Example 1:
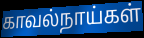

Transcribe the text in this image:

காவல்நாய்கள்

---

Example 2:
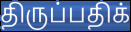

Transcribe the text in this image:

திருப்பதிக்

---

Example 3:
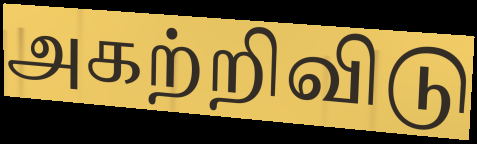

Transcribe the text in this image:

அகற்றிவிடு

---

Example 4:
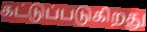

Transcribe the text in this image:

கட்டுப்படுகிறது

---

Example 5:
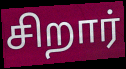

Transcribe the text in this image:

சிறார்